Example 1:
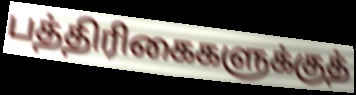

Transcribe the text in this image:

பத்திரிகைகளுக்குத்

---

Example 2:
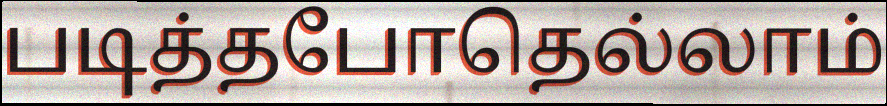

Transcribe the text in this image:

படித்தபோதெல்லாம்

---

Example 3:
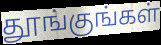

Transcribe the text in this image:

தூங்குங்கள்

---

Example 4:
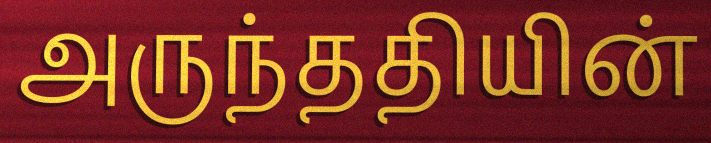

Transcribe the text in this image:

அருந்ததியின்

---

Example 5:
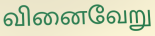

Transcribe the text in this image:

வினைவேறு